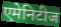
एमेनिटीज